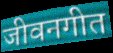
जीवनगीत